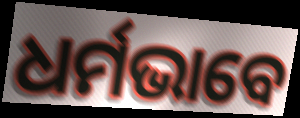
ଧର୍ମଭାବେ